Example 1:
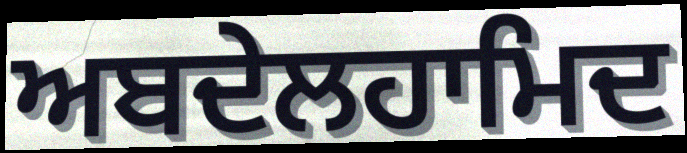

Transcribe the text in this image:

ਅਬਦੇਲਹਾਮਿਦ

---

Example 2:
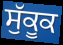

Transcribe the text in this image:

ਸੁੱਕੂਕ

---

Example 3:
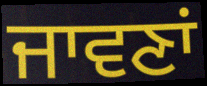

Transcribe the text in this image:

ਜਾਵਣਾਂ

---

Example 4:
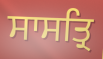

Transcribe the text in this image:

ਸਾਸਤ੍ਰਿ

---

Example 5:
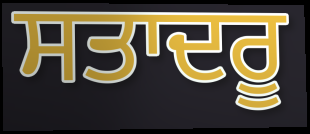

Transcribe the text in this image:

ਸਤਾਦਰੂ